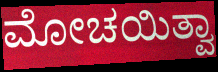
ಮೋಚಯಿತ್ವಾ